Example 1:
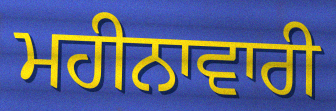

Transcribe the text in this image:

ਮਹੀਨਾਵਾਰੀ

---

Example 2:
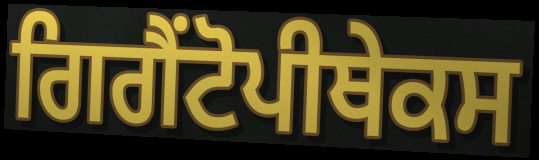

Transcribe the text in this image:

ਗਿਗੈਂਟੋਪੀਥੇਕਸ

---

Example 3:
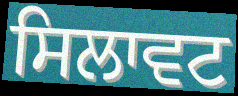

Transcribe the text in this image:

ਸਿਲਾਵਟ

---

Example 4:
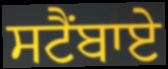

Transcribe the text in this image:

ਸਟੈਂਬਾਏ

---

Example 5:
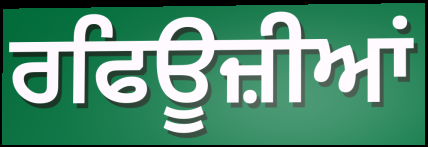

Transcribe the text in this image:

ਰਫਿਊਜ਼ੀਆਂ